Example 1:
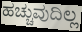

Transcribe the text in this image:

ಹಚ್ಚುವುದಿಲ್ಲ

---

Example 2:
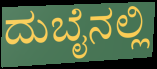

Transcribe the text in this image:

ದುಬೈನಲ್ಲಿ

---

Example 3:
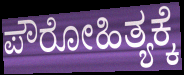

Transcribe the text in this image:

ಪೌರೋಹಿತ್ಯಕ್ಕೆ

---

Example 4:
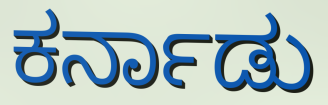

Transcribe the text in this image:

ಕರ್ನಾಡು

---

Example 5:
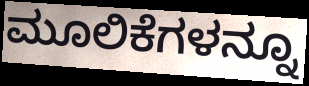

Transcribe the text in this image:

ಮೂಲಿಕೆಗಳನ್ನೂ